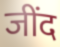
जींद